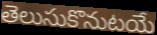
తెలుసుకొనుటయే